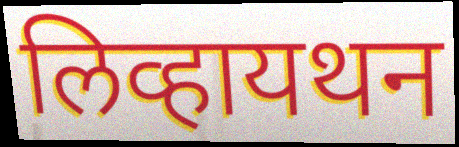
लिव्हायथन